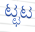
ಟ್ಟಟ